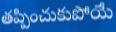
తప్పించుకుపోయే